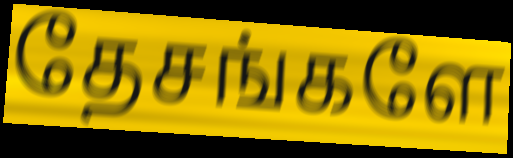
தேசங்களே